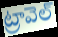
ట్రావెల్